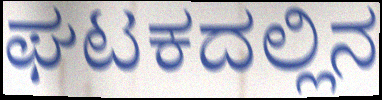
ಘಟಕದಲ್ಲಿನ